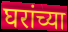
घरांच्या